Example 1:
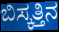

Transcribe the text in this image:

ಬಿಸ್ಕತ್ತಿನ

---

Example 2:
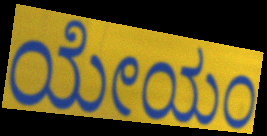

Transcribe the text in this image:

ಯೇಯಂ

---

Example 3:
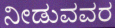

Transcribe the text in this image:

ನೀಡುವವರ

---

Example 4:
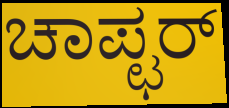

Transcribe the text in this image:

ಚಾಪ್ಟರ್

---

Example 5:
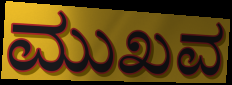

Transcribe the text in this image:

ಮುಖವ